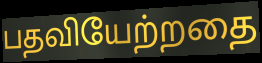
பதவியேற்றதை